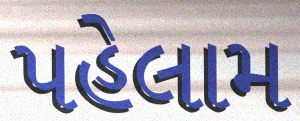
પહેલામ